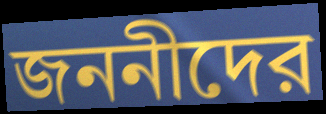
জননীদের